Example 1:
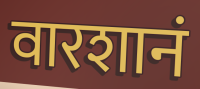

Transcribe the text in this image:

वारशानं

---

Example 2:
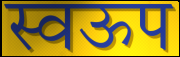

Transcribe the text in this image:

स्वऊप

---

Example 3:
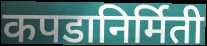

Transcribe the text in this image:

कपडानिर्मिती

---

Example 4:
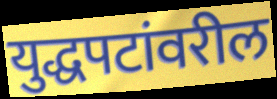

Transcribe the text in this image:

युद्धपटांवरील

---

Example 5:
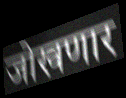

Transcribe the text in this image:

जोखणार